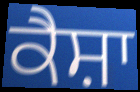
ਕੈਸ਼ਾ